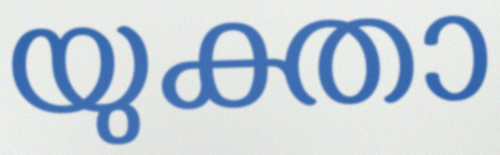
യുക്താ